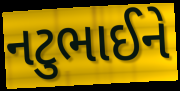
નટુભાઈને